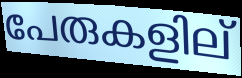
പേരുകളില്